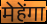
मेहेंगा